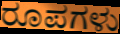
ರೂಪಗಳು